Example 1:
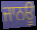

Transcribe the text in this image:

ਜਾਨਊ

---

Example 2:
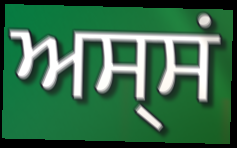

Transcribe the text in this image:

ਅਸ੍ਸਂ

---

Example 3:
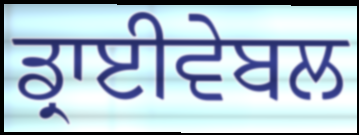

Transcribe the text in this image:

ਡ੍ਰਾਈਵੇਬਲ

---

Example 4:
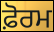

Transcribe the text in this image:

ਫ਼ੋਰਮ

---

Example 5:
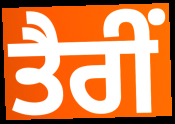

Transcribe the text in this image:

ਤੈਰੀਂ